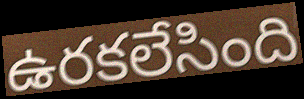
ఉరకలేసింది